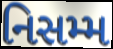
નિસમ્મ